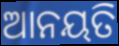
ଆନୟତି